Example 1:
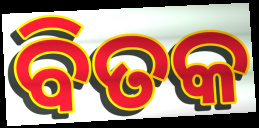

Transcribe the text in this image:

ବିତକ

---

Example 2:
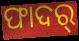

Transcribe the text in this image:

ଫାଦର୍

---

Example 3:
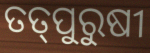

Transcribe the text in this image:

ତତ୍‌ପୁରୁଷୀ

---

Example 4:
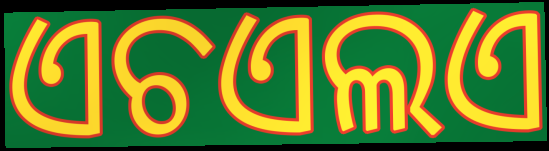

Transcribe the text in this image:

ଏଚଏଲଏ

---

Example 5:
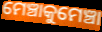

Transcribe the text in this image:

ମେଞ୍ଚାକୁମେଞ୍ଚା